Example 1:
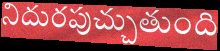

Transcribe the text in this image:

నిదురపుచ్చుతుంది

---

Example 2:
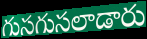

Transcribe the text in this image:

గుసగుసలాడారు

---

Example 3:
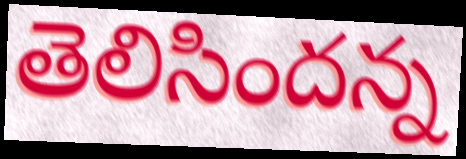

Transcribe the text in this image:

తెలిసిందన్న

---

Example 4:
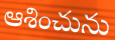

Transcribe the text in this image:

ఆశించును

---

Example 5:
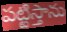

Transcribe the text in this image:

పట్టిస్తాను